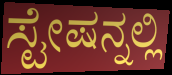
ಸ್ಟೇಷನ್ನಲ್ಲಿ